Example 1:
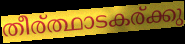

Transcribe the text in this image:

തീര്ത്ഥാടകര്ക്കു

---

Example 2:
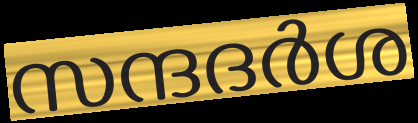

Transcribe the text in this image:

സന്ദദർശ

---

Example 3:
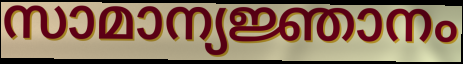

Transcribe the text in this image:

സാമാന്യജ്ഞാനം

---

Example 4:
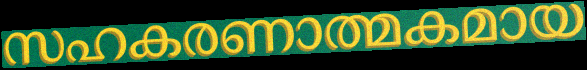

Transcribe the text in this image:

സഹകരണാത്മകമായ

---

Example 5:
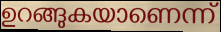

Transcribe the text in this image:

ഉറങ്ങുകയാണെന്ന്